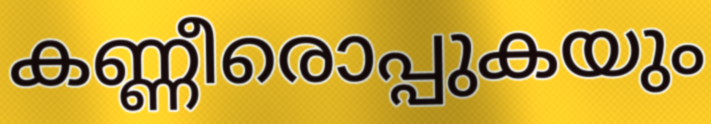
കണ്ണീരൊപ്പുകയും